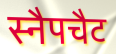
स्नैपचैट